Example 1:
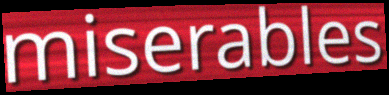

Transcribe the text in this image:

miserables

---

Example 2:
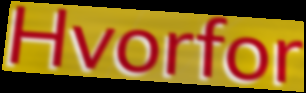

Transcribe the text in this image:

Hvorfor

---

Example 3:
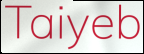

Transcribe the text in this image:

Taiyeb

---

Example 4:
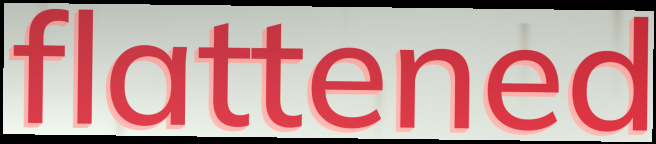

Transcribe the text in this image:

flattened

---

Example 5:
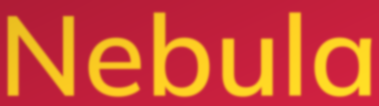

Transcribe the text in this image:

Nebula